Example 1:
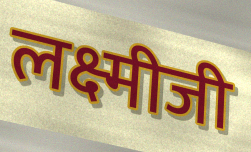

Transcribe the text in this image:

लक्ष्मीजी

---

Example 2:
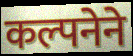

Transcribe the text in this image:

कल्पनेने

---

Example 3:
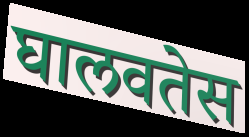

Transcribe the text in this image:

घालवतेस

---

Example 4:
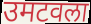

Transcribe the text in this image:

उमटवला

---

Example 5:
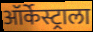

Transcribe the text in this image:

ऑर्केस्ट्राला